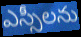
ఎస్సీలను